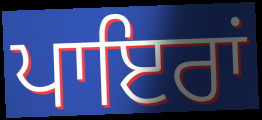
ਪਾਇਰਾਂ